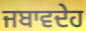
ਜਬਾਵਦੇਹ